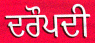
ਦਰੌਪਦੀ